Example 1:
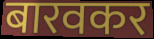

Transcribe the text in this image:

बारवकर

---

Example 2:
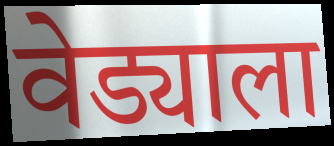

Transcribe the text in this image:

वेड्याला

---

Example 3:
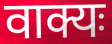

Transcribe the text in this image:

वाक्यः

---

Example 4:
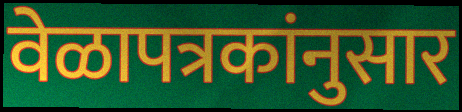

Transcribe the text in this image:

वेळापत्रकांनुसार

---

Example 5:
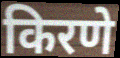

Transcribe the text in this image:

किरणे